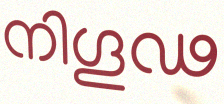
നിഗൂഢ